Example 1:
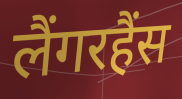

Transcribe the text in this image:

लैंगरहैंस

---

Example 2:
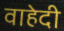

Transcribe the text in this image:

वाहेदी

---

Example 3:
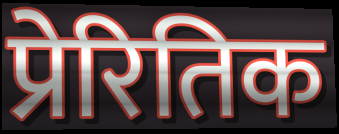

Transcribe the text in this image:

प्रेरितिक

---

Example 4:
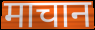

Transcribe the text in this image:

माचान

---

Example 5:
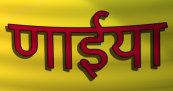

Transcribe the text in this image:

णाईया